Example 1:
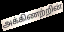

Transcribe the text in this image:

அக்கிணற்றின்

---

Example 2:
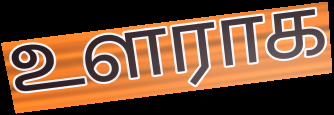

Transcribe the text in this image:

உளராக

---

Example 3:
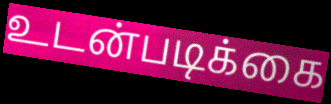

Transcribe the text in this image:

உடன்படிக்கை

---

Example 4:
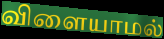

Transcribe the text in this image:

விளையாமல்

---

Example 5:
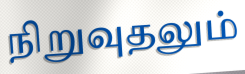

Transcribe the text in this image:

நிறுவுதலும்